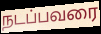
நடப்பவரை